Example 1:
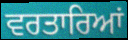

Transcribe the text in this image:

ਵਰਤਾਰਿਆਂ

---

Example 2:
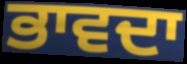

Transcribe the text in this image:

ਭਾਵਦਾ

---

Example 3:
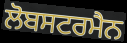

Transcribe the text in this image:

ਲੋਬਸਟਰਮੈਨ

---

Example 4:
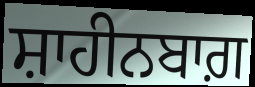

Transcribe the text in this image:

ਸ਼ਾਹੀਨਬਾਗ਼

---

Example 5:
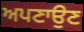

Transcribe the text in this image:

ਅਪਣਾਉਣ